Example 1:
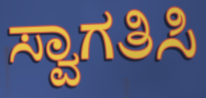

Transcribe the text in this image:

ಸ್ವಾಗತಿಸಿ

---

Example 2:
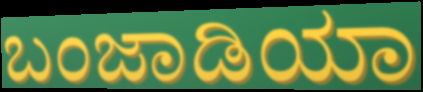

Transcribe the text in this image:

ಬಂಜಾಡಿಯಾ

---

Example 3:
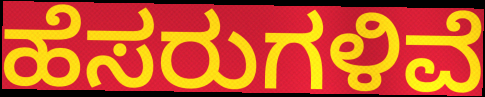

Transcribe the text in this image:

ಹೆಸರುಗಳಿವೆ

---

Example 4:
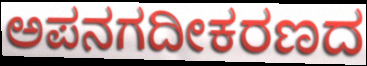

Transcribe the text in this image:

ಅಪನಗದೀಕರಣದ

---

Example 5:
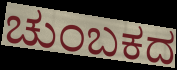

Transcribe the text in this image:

ಚುಂಬಕದ